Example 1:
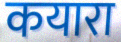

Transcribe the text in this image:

कयारा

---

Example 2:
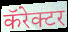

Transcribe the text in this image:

कॅरेक्टर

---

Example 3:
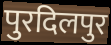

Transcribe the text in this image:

पुरदिलपुर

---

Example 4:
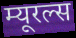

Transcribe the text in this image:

म्यूरल्स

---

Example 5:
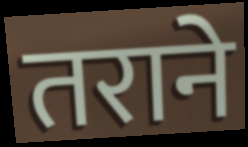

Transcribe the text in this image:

तराने